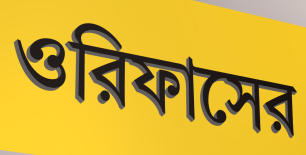
ওরিফাসের